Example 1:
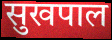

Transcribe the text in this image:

सुखपाल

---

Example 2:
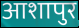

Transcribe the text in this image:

आशापुर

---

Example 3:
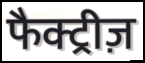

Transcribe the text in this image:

फैक्ट्रीज़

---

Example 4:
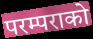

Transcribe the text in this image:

परम्पराको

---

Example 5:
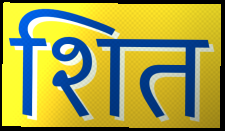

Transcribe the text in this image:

शित